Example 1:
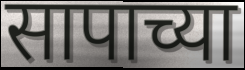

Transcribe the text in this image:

सापाच्या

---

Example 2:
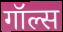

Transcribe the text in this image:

गॉल्स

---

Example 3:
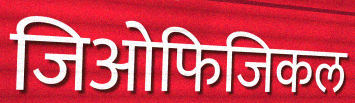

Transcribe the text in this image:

जिओफिजिकल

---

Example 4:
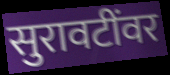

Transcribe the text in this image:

सुरावटींवर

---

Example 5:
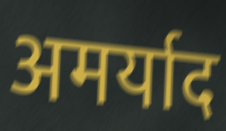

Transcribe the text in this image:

अमर्याद